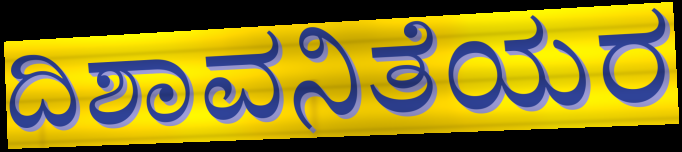
ದಿಶಾವನಿತೆಯರ